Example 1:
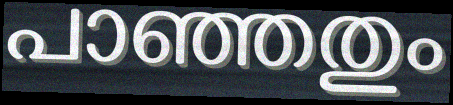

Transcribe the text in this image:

പാഞ്ഞതും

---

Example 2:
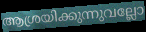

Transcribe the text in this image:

ആശ്രയിക്കുന്നുവല്ലോ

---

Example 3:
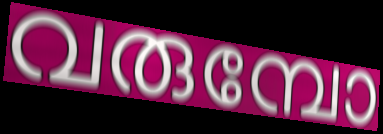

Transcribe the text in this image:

വരുമ്പോ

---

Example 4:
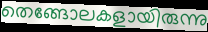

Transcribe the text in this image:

തെങ്ങോലകളായിരുന്നു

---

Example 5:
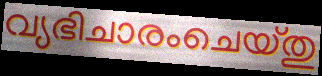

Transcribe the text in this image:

വ്യഭിചാരംചെയ്തു